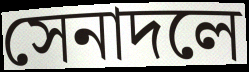
সেনাদলে